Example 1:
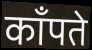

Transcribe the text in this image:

काँपते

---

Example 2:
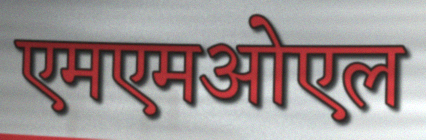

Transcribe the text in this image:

एमएमओएल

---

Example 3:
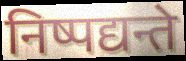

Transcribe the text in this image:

निष्पद्यन्ते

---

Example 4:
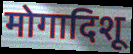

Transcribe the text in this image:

मोगादिशू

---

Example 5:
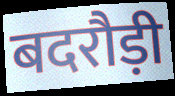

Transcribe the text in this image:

बदरौड़ी